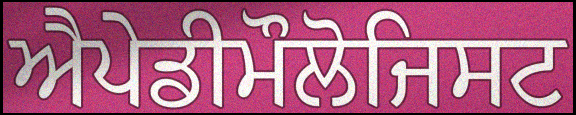
ਐਪੇਡੀਮੌਲੋਜਿਸਟ